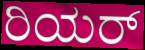
ರಿಯರ್